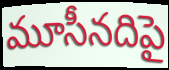
మూసీనదిపై